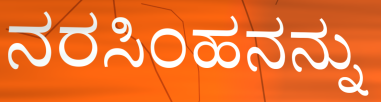
ನರಸಿಂಹನನ್ನು